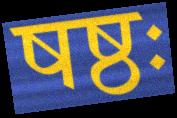
षष्ठः